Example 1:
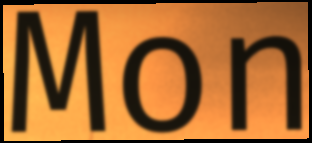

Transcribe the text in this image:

Mon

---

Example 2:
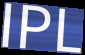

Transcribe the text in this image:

IPL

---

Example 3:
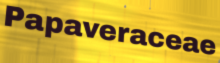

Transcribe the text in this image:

Papaveraceae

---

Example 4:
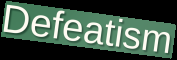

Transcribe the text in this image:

Defeatism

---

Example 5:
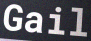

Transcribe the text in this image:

Gail